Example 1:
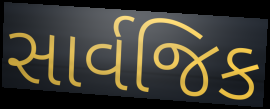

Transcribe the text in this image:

સાર્વજિક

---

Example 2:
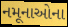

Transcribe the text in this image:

નમૂનાઓના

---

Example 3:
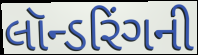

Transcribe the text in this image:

લૉન્ડરિંગની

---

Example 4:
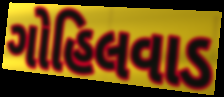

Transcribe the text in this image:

ગોહિલવાડ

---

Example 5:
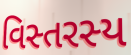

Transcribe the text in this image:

વિસ્તરસ્ય